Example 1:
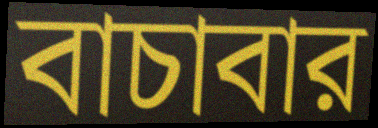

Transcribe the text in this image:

বাচাবার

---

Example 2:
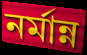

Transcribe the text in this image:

নর্মান্ন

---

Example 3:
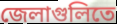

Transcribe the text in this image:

জেলাগুলিতে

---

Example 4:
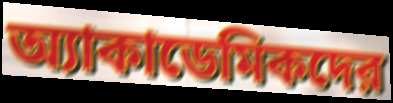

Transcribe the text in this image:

অ্যাকাডেমিকদের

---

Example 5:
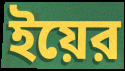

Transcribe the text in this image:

ইয়ের